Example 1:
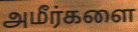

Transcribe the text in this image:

அமீர்களை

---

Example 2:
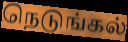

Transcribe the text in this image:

நெடுங்கல்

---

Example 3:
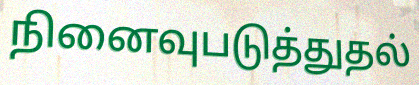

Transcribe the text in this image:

நினைவுபடுத்துதல்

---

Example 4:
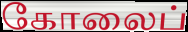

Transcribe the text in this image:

கோலைப்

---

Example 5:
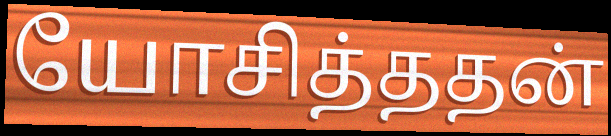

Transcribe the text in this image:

யோசித்ததன்